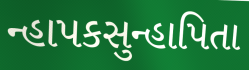
ન્હાપકસુન્હાપિતા